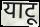
याटू